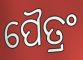
ପୈତ୍ରଂ